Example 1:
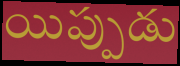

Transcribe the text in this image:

యిప్పుడు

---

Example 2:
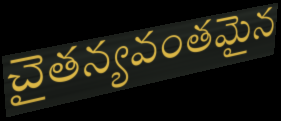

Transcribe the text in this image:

చైతన్యవంతమైన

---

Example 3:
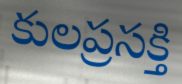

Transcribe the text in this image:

కులప్రసక్తి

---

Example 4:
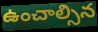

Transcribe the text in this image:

ఉంచాల్సిన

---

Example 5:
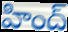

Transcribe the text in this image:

హింద్